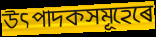
উৎপাদকসমূহেৰে